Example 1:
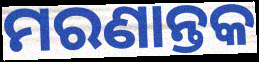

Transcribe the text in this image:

ମରଣାନ୍ତକ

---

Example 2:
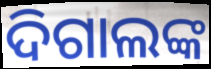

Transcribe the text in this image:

ଦିଗାଲଙ୍କ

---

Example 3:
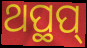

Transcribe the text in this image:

ଥପ୍ଥପ୍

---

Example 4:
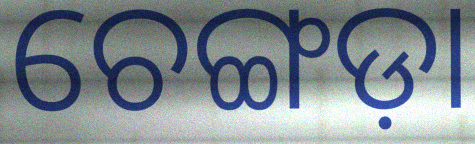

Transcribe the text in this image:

ଚେଙ୍ଗଡ଼ା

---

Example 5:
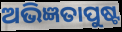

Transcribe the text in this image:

ଅଭିଜ୍ଞତାପୁଷ୍ଟ